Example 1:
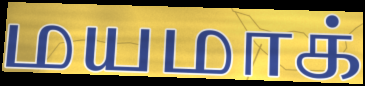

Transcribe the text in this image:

மயமாக்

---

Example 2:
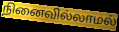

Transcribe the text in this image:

நினைவில்லாமல்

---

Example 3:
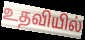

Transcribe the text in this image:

உதவியில்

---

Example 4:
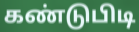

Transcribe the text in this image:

கண்டுபிடி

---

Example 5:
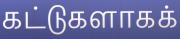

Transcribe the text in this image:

கட்டுகளாகக்